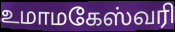
உமாமகேஸ்வரி